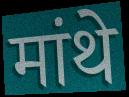
मांथे